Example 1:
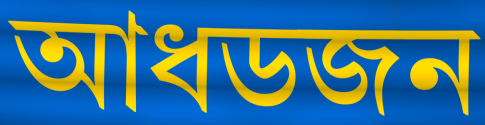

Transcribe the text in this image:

আধডজন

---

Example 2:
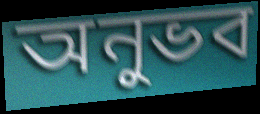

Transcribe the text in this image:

অনুভব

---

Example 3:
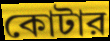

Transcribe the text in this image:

কোটার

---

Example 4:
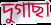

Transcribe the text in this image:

দুগাছা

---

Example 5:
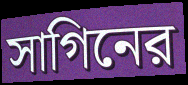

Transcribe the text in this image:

সাগিনের